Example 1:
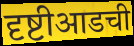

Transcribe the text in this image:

दृष्टीआडची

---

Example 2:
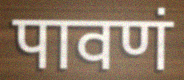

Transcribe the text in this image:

पावणं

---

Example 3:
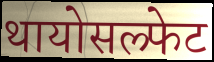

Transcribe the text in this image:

थायोसल्फेट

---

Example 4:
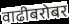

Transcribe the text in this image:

वाढीबरोबर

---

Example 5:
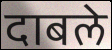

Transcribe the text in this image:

दाबले